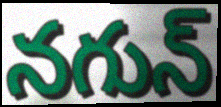
నగున్